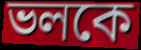
ভলকে